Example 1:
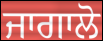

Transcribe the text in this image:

ਜਾਗਾਲੋ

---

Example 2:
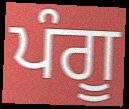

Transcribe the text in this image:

ਪੰਗੂ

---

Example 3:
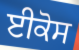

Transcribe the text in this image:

ਈਕੋਸ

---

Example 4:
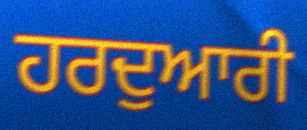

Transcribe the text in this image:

ਹਰਦੁਆਰੀ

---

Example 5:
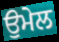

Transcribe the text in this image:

ਉਮੇਲ